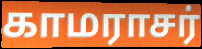
காமராசர்